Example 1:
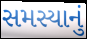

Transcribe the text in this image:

સમસ્યાનું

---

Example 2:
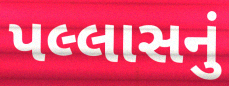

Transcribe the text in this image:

પલ્લાસનું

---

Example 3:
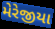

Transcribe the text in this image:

મેરેજીયા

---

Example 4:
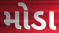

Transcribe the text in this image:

મોડા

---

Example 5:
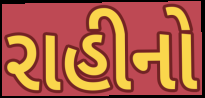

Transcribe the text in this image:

રાહીનો